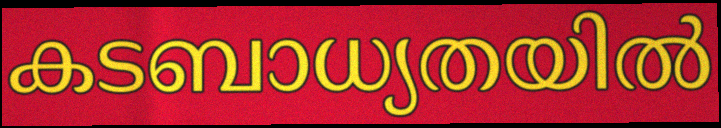
കടബാധ്യതയിൽ